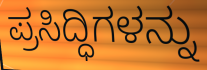
ಪ್ರಸಿದ್ಧಿಗಳನ್ನು